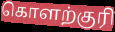
கொளற்குரி